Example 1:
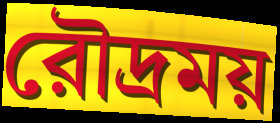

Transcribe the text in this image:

রৌদ্রময়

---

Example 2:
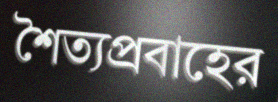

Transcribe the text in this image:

শৈত্যপ্রবাহের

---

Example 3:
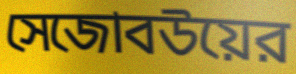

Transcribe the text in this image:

সেজোবউয়ের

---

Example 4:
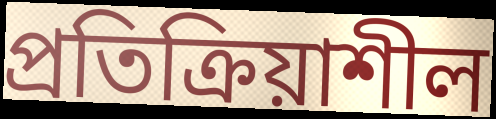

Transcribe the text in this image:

প্রতিক্রিয়াশীল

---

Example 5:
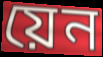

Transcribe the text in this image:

য়েন